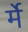
र्मे